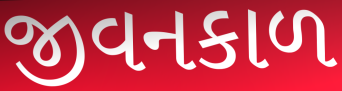
જીવનકાળ